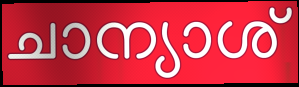
ചാന്യാശ്